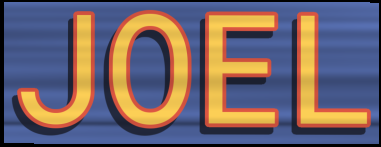
JOEL